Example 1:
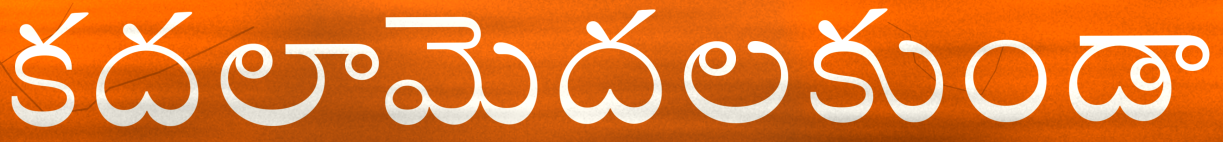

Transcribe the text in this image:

కదలామెదలకుండా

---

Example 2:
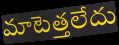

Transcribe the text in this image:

మాటెత్తలేదు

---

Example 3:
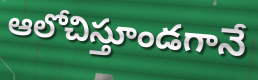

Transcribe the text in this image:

ఆలోచిస్తూండగానే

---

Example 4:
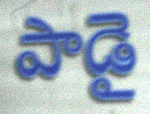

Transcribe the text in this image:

పాడై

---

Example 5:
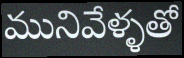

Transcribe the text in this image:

మునివేళ్ళతో